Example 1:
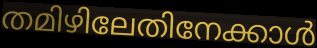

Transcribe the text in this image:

തമിഴിലേതിനേക്കാൾ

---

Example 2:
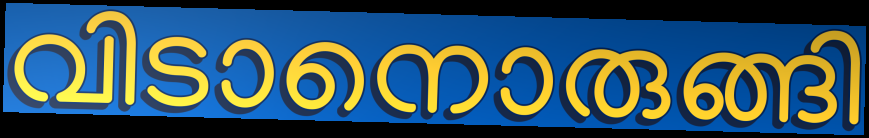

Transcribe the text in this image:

വിടാനൊരുങ്ങി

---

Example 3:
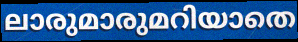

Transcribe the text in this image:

ലാരുമാരുമറിയാതെ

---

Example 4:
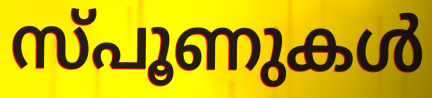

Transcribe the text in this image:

സ്പൂണുകൾ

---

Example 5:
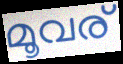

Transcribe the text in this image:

മൂവര്